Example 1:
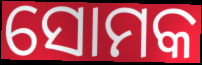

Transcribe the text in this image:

ସୋମକ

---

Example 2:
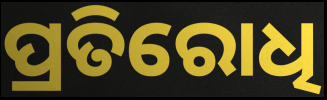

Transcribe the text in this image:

ପ୍ରତିରୋଧି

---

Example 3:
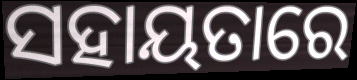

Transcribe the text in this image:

ସହାୟତାରେ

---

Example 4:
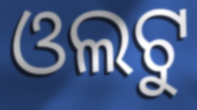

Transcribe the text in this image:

ଓଲଟୁ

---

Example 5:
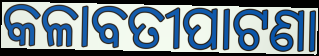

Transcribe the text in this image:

କଳାବତୀପାଟଣା